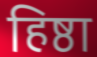
हिष्ठा